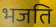
भजति